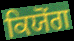
ਕਿਯੋਂਗ